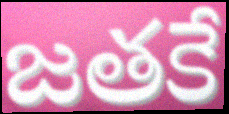
జతకే